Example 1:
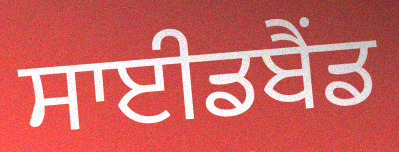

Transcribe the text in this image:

ਸਾਈਡਬੈਂਡ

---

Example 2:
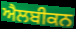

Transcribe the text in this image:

ਐਲਬੀਕਨ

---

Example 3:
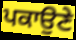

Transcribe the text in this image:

ਪਕਾਉਣੇ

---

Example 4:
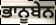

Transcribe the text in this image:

ਭਾਨੂਬੇਨ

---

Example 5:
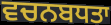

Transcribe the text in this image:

ਵਚਨਬਧਤਾ